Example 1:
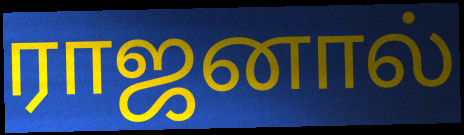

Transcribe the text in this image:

ராஜனால்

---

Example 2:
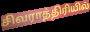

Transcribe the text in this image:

சிவராத்திரியில்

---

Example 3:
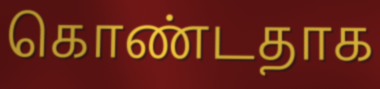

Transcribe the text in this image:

கொண்டதாக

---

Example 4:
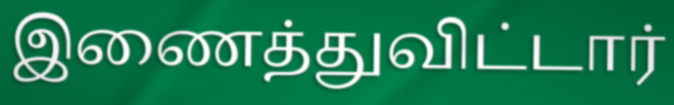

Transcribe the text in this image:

இணைத்துவிட்டார்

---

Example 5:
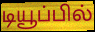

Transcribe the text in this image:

டியூப்பில்